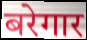
बरेगार